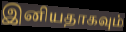
இனியதாகவும்